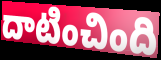
దాటించింది